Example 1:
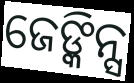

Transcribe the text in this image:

ଜେଙ୍କିନ୍ସ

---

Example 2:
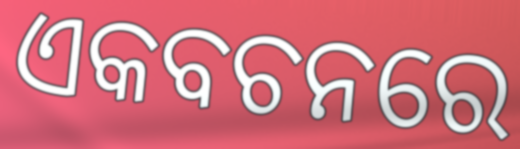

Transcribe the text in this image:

ଏକବଚନରେ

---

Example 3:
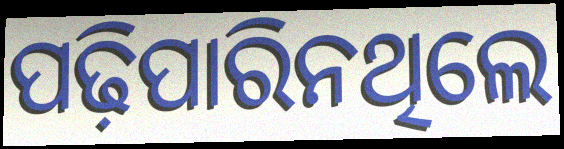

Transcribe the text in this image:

ପଢ଼ିପାରିନଥିଲେ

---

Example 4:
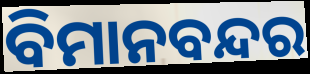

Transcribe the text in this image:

ବିମାନବନ୍ଦର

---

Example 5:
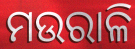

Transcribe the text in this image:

ମଉରାଳି